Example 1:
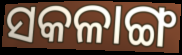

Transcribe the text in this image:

ସକଳାଙ୍ଗ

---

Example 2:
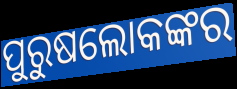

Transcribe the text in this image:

ପୁରୁଷଲୋକଙ୍କର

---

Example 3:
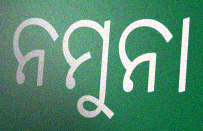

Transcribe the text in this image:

ନମୁନା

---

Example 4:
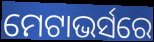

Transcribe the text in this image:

ମେଟାଭର୍ସରେ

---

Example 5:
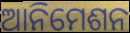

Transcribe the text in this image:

ଆନିମେଶନ